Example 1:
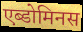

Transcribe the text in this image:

एब्डोमिनस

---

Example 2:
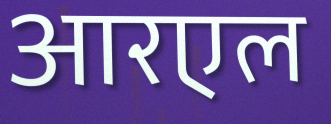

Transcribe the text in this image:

आरएल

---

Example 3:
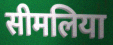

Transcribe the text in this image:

सीमलिया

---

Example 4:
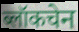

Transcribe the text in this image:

ब्लॉकचेन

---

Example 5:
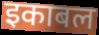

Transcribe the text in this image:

इकाबल